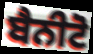
ਬੈਨੀਟੋ